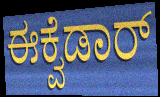
ಈಕ್ವೆಡಾರ್